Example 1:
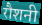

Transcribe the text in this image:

रौशनी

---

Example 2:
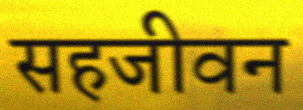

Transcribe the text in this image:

सहजीवन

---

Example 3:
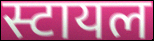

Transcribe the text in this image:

स्टायल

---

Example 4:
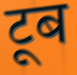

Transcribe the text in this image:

टूब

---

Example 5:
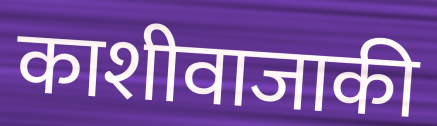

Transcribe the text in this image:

काशीवाजाकी